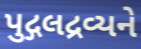
પુદ્ગલદ્રવ્યને